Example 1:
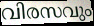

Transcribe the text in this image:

വിരസവും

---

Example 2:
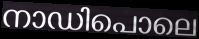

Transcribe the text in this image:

നാഡിപൊലെ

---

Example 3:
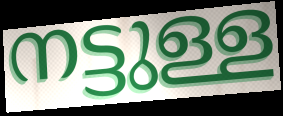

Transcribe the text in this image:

നട്ടുള്ള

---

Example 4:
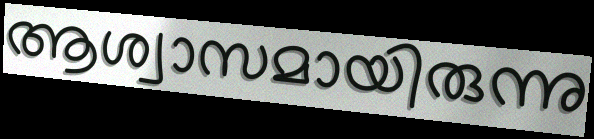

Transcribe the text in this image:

ആശ്വാസമായിരുന്നു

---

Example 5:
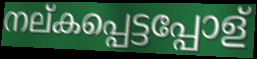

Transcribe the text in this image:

നല്കപ്പെട്ടപ്പോള്